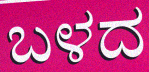
ಬಳದ